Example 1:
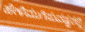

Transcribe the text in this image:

ಹೇಳಿಮುಗಿಸುವಷ್ಟರಲ್ಲಿ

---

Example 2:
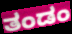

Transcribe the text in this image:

ತಂಡಂ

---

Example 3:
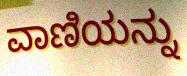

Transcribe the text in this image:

ವಾಣಿಯನ್ನು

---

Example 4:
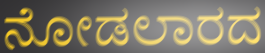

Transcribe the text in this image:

ನೋಡಲಾರದ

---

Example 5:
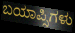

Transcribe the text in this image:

ಬಯಾಪ್ಸಿಗಳು